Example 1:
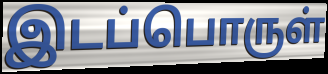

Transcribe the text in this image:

இடப்பொருள்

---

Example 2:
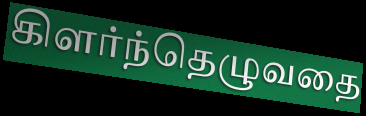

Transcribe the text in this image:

கிளர்ந்தெழுவதை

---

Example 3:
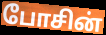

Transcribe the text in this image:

போசின்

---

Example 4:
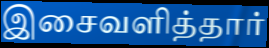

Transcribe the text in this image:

இசைவளித்தார்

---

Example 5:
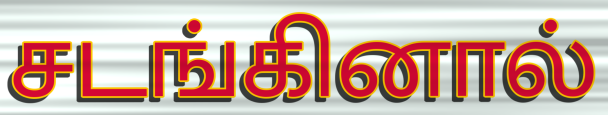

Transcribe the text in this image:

சடங்கினால்